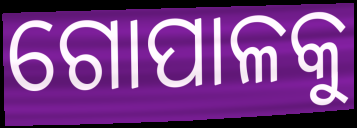
ଗୋପାଳକୁ